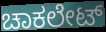
ಚಾಕಲೇಟ್